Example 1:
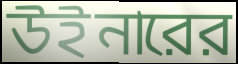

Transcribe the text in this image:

উইনারের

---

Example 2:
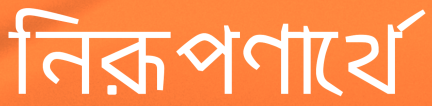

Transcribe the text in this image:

নিরূপণার্থে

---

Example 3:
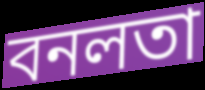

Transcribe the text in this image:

বনলতা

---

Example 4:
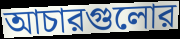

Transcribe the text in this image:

আচারগুলোর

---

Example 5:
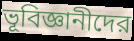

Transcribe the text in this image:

ভূবিজ্ঞানীদের